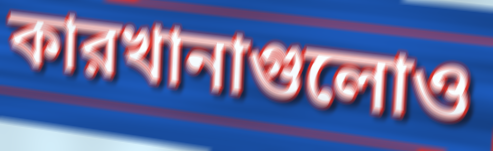
কারখানাগুলোও